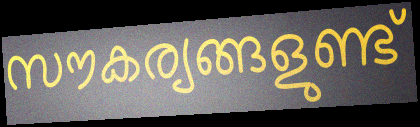
സൗകര്യങ്ങളുണ്ട്